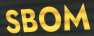
SBOM